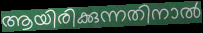
ആയിരിക്കുന്നതിനാൽ